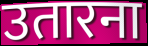
उतारना